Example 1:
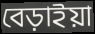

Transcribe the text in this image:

বেড়াইয়া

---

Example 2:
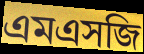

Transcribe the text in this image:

এমএসজি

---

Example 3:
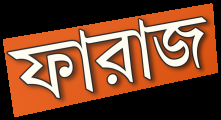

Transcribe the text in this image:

ফারাজ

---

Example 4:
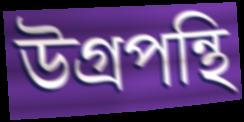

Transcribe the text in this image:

উগ্রপন্থি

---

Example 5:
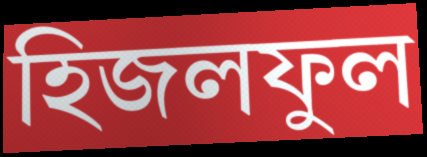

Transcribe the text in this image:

হিজলফুল